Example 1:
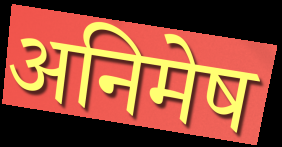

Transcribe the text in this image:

अनिमेष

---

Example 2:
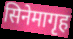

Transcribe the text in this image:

सिनेमागृह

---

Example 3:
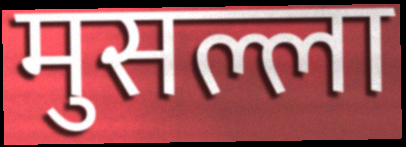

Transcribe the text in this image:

मुसल्ला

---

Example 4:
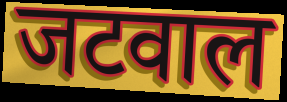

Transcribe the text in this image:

जटवाल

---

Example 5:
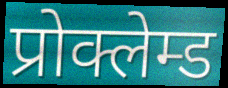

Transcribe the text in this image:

प्रोक्लेम्ड